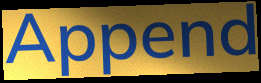
Append